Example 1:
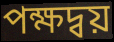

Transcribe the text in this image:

পক্ষদ্বয়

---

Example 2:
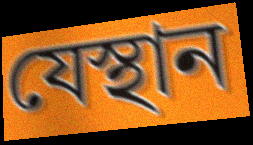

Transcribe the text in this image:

যেস্থান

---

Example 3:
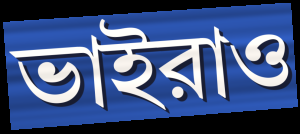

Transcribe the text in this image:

ভাইরাও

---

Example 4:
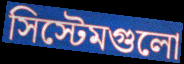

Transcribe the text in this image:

সিস্টেমগুলো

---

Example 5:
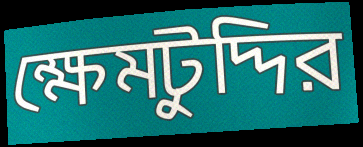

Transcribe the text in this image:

ক্ষেমটুদ্দির